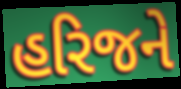
હરિજને